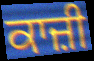
ਕਾਜ਼ੀ